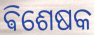
ଵିଶେଷକ